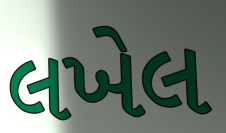
લખેલ